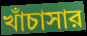
খাঁচাসার